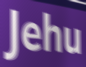
Jehu